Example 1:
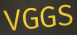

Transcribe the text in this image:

VGGS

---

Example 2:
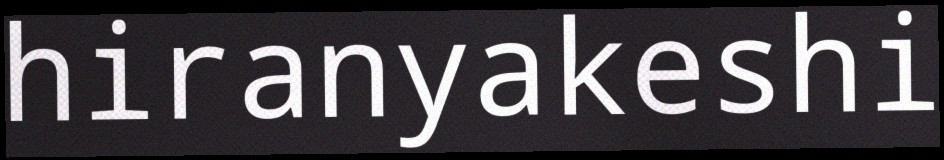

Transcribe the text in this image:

hiranyakeshi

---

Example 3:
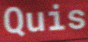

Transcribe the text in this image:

Quis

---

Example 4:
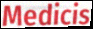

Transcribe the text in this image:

Medicis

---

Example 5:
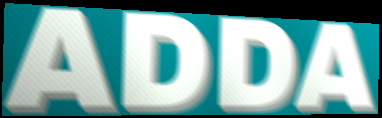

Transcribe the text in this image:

ADDA